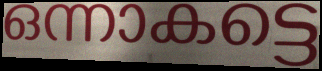
ഒന്നാകട്ടെ